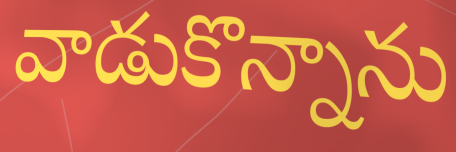
వాడుకొన్నాను